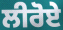
ਲੀਰੋਏ